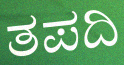
ತಪದಿ